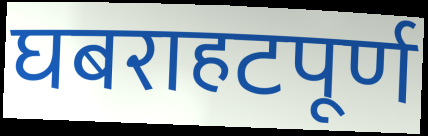
घबराहटपूर्ण